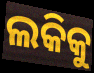
ଲକିକୁ